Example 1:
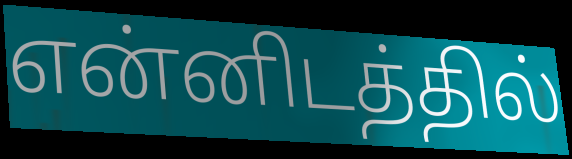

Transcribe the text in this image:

என்னிடத்தில்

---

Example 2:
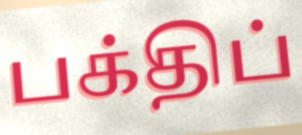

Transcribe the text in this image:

பக்திப்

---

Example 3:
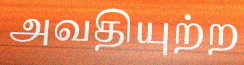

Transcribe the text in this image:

அவதியுற்ற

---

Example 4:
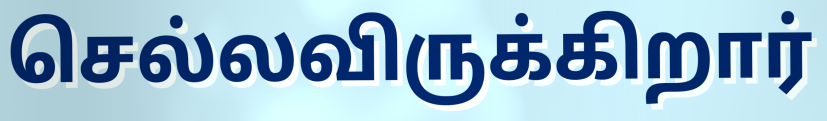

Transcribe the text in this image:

செல்லவிருக்கிறார்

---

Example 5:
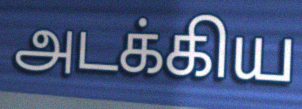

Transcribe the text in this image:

அடக்கிய